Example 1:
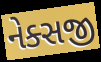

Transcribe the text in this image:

નેક્સજી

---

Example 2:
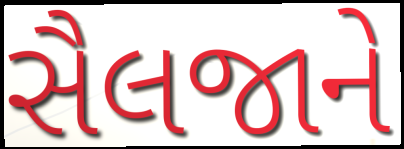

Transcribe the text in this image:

સૈલજાને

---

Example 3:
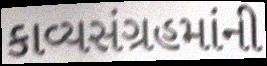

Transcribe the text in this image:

કાવ્યસંગ્રહમાંની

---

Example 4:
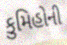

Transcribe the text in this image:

કુમિહોની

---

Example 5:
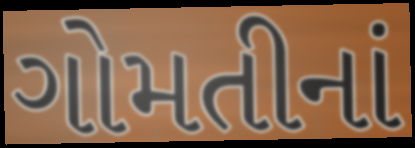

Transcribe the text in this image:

ગોમતીનાં